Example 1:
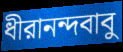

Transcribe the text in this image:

ধীরানন্দবাবু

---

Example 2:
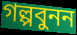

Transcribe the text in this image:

গল্পবুনন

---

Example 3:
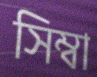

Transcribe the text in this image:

সিম্বা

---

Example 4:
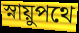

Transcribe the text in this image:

স্নায়ুপথে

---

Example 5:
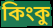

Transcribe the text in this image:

কিংকু